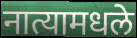
नात्यामधले